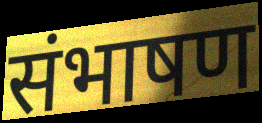
संभाषण